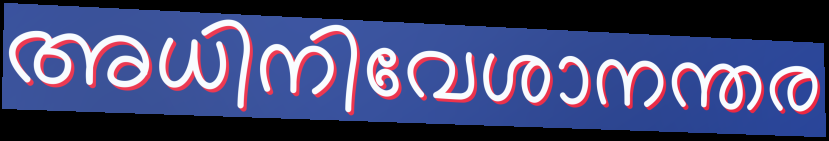
അധിനിവേശാനന്തര